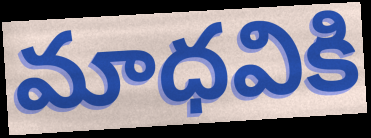
మాధవికి